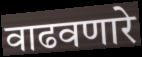
वाढवणारे